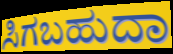
ಸಿಗಬಹುದಾ